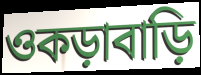
ওকড়াবাড়ি